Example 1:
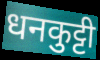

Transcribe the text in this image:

धनकुट्टी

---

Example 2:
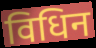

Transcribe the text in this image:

विधिन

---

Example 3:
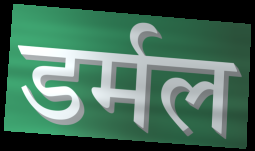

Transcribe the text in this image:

डर्मल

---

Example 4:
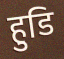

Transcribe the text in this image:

हुडि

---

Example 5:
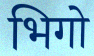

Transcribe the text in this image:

भिगो